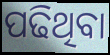
ପଢିଥିବା